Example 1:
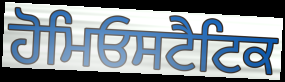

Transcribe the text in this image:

ਹੋਮਿਓਸਟੈਟਿਕ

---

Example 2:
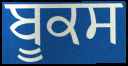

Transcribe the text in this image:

ਬੂਕਸ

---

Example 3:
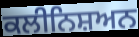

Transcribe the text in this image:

ਕਲੀਨਿਸ਼ਅਨ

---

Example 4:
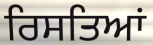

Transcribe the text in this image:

ਰਿਸਤਿਆਂ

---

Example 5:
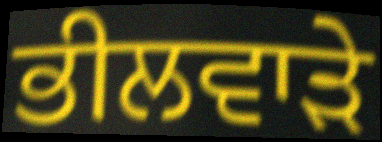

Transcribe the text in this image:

ਭੀਲਵਾੜੇ